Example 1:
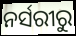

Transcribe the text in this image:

ନର୍ସରୀରୁ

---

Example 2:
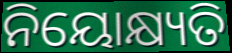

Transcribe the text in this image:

ନିୟୋକ୍ଷ୍ୟତି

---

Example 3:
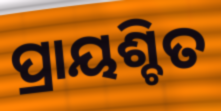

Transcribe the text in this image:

ପ୍ରାୟଶ୍ଚିତ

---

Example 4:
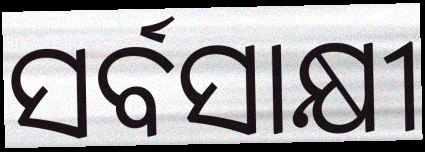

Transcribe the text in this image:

ସର୍ବସାକ୍ଷୀ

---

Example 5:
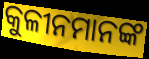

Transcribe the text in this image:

କୁଳୀନମାନଙ୍କ